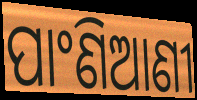
ପାଂଣିଆଣୀ